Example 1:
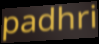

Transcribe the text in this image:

padhri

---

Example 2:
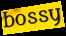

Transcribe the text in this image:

bossy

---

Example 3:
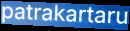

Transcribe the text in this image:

patrakartaru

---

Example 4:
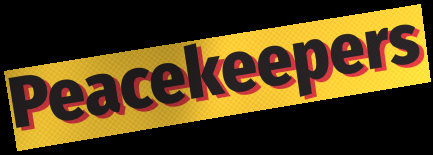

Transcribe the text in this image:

Peacekeepers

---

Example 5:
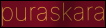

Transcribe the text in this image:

puraskara